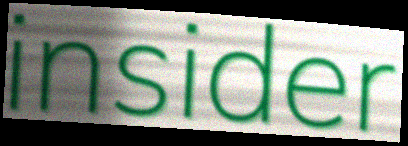
insider